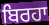
ਬਿਰਹਾ